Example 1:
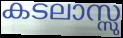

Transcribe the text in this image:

കടലാസ്സു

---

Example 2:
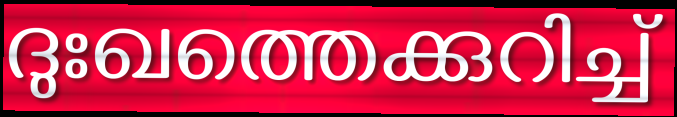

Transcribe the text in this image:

ദുഃഖത്തെക്കുറിച്ച്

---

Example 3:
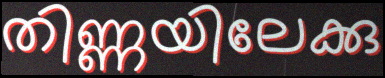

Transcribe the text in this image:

തിണ്ണയിലേക്കു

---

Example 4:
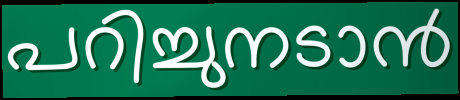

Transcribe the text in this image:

പറിച്ചുനടാൻ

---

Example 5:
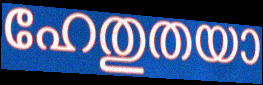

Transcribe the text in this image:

ഹേതുതയാ